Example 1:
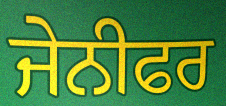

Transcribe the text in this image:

ਜੇਨੀਫਰ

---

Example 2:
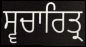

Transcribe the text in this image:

ਸ੍ਵਚਾਰਿਤ੍ਰ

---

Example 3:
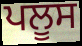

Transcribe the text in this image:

ਪਲੂਸ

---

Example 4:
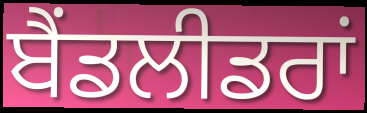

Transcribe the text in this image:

ਬੈਂਡਲੀਡਰਾਂ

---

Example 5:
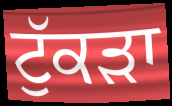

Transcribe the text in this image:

ਟੁੱਕੜਾ